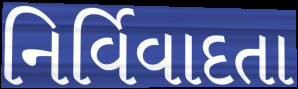
નિર્વિવાદતા